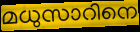
മധുസാറിനെ